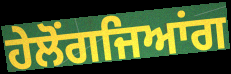
ਹੇਲੋਂਗਜਿਆਂਗ